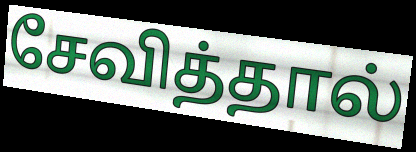
சேவித்தால்